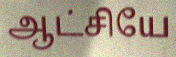
ஆட்சியே